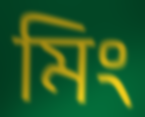
মিং